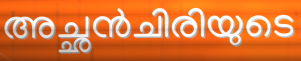
അച്ഛൻചിരിയുടെ